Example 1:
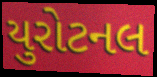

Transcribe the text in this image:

યુરોટનલ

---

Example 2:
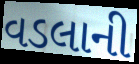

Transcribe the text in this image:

વડલાની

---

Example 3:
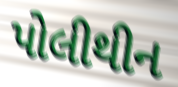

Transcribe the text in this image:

પોલીથીન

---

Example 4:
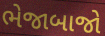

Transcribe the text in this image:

ભેજાબાજો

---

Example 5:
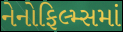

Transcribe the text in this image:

નેનોફિલ્મ્સમાં